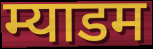
म्याडम